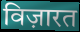
विज़ारत